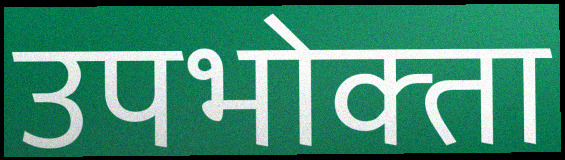
उपभोक्‍ता